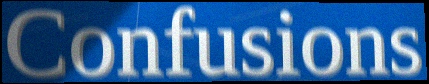
Confusions